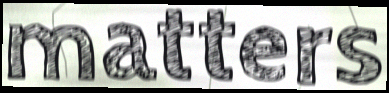
matters